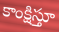
కాంక్షిస్తూ